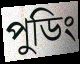
পুডিং